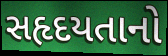
સહૃદયતાનો